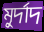
মুৰ্দাদ